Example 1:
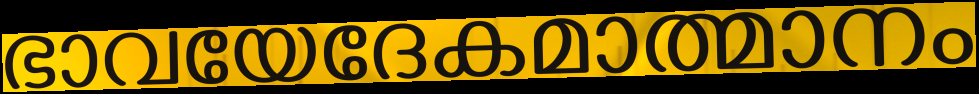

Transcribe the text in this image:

ഭാവയേദേകമാത്മാനം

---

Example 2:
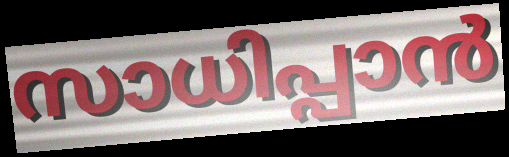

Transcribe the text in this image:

സാധിപ്പാൻ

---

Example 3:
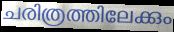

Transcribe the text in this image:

ചരിത്രത്തിലേക്കും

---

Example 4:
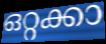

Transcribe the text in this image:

ഒറ്റക്കാ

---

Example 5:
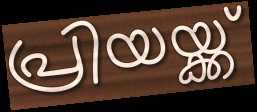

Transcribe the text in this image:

പ്രിയയ്ക്ക്